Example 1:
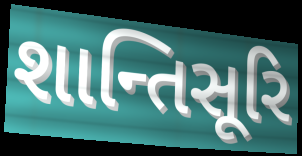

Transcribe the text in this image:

શાન્તિસૂરિ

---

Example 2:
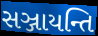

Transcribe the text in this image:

સઞ્જાયન્તિ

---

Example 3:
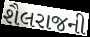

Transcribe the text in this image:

શૈલરાજની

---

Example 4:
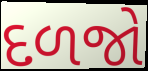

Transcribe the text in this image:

દળજો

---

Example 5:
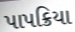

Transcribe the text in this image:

પાપક્રિયા